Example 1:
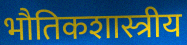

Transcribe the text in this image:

भौतिकशास्त्रीय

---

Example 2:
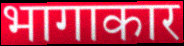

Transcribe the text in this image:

भागाकार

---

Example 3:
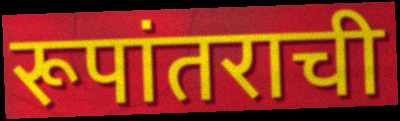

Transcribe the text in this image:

रूपांतराची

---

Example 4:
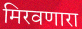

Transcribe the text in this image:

मिरवणारा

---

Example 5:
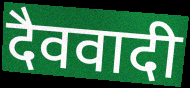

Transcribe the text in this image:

दैववादी